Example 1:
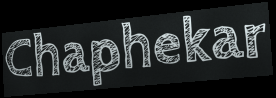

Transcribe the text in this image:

Chaphekar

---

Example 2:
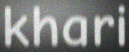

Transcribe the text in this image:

khari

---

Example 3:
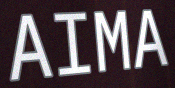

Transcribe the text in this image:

AIMA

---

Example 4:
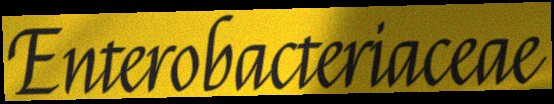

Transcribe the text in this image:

Enterobacteriaceae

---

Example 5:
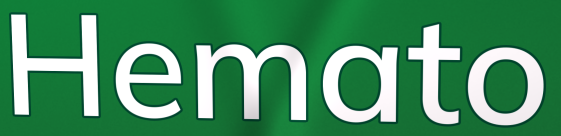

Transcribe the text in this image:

Hemato